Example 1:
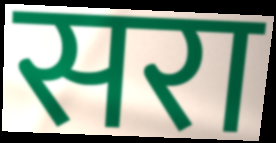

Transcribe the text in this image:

सरा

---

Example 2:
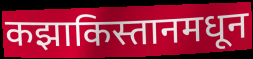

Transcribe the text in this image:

कझाकिस्तानमधून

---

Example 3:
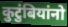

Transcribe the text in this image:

कुटुंबियांनो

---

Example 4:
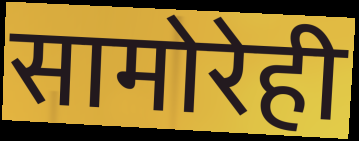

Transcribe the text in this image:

सामोरेही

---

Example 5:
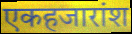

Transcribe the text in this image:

एकहजारांश